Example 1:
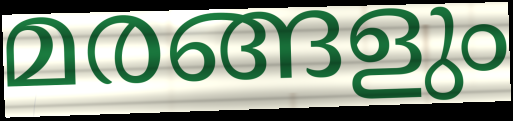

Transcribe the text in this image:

മരങ്ങളും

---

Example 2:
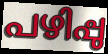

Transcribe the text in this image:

പഴിപ്പു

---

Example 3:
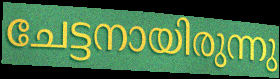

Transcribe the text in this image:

ചേട്ടനായിരുന്നു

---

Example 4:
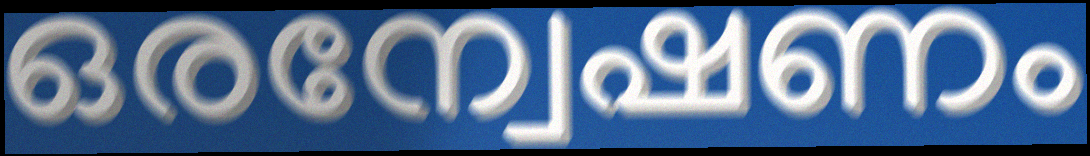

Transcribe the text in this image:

ഒരന്വേഷണം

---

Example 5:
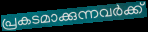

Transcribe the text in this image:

പ്രകടമാക്കുന്നവർക്ക്